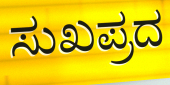
ಸುಖಪ್ರದ